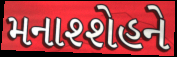
મનાશ્શેહને